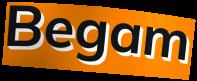
Begam